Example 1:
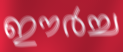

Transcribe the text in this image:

ഈർച്ച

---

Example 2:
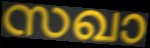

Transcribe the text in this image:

സഖാ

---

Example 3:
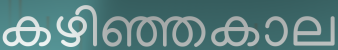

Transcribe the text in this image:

കഴിഞ്ഞകാല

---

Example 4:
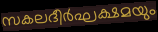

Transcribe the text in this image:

സകലദീർഘക്ഷമയും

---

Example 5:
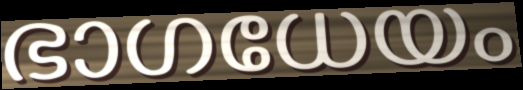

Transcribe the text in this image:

ഭാഗധേയം